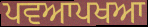
ਪਵਆਪਖਆ